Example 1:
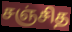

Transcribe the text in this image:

சஞ்சித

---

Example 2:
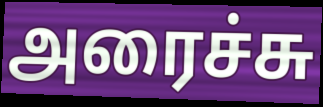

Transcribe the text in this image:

அரைச்சு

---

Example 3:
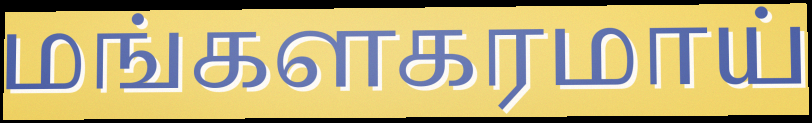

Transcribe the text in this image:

மங்களகரமாய்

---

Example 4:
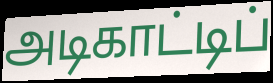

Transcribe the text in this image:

அடிகாட்டிப்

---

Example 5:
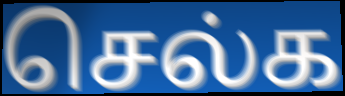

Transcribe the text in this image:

செல்க